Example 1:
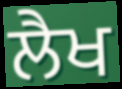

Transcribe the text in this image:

ਲੈਖ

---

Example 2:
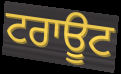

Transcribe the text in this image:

ਟਰਾਊਟ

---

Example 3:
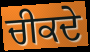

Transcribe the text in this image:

ਚੀਕਦੇ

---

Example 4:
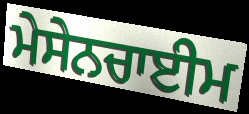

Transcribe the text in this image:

ਮੇਸੇਨਚਾਈਮ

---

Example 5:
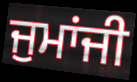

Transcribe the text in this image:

ਜੁਮਾਂਜੀ